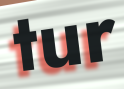
tur